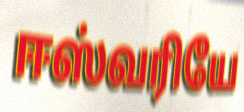
ஈஸ்வரியே